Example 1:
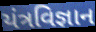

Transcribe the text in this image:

યંત્રવિજ્ઞાન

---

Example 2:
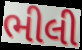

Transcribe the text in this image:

ભીલી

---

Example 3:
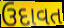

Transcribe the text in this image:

ઉદાવત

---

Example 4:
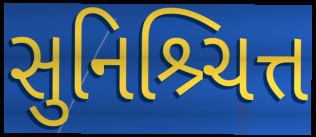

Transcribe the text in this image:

સુનિશ્ર્ચિત્ત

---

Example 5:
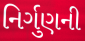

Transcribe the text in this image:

નિર્ગુણની